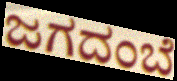
ಜಗದಂಬೆ